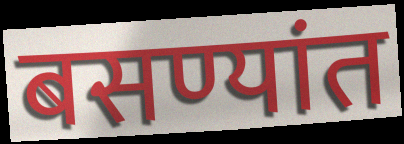
बसण्यांत